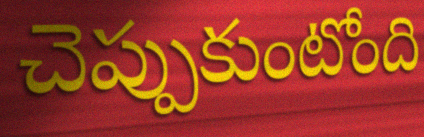
చెప్పుకుంటోంది